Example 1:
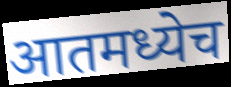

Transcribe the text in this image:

आतमध्येच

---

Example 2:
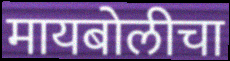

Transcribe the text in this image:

मायबोलीचा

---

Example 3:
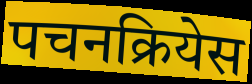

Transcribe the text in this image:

पचनक्रियेस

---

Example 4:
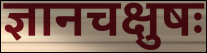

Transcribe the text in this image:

ज्ञानचक्षुषः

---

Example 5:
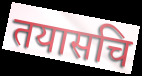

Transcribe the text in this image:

तयासचि